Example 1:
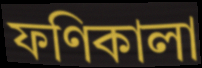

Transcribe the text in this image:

ফণিকালা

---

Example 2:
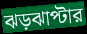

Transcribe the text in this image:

ঝড়ঝাপ্টার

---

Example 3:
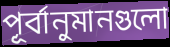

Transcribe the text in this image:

পূর্বানুমানগুলো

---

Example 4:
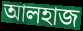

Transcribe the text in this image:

আলহাজ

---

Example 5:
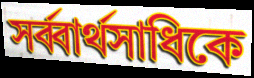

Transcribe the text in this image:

সর্ব্বার্থসাধিকে